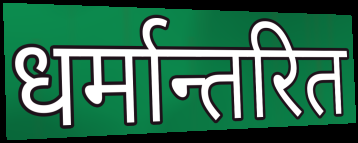
धर्मान्तरित